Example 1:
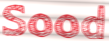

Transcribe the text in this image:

Sood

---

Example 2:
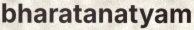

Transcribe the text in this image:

bharatanatyam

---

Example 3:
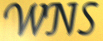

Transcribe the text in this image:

WNS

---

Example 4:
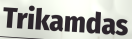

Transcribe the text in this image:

Trikamdas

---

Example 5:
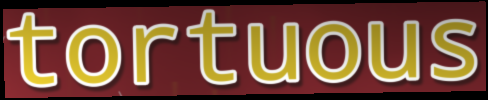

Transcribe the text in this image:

tortuous